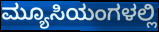
ಮ್ಯೂಸಿಯಂಗಳಲ್ಲಿ